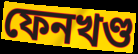
ফেনখণ্ড